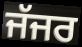
ਜੱਜਰ